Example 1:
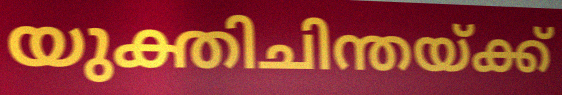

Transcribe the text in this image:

യുക്തിചിന്തയ്ക്ക്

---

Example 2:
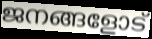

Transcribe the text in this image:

ജനങ്ങളോട്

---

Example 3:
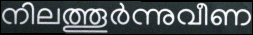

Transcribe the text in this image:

നിലത്തൂർന്നുവീണ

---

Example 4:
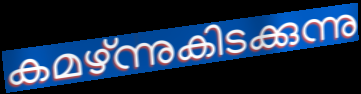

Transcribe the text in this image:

കമഴ്ന്നുകിടക്കുന്നു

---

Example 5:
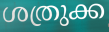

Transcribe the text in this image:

ശത്രുക്ക